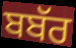
ਬਬੱਰ